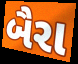
બૈરા